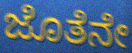
ಜೊತೆನೇ